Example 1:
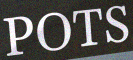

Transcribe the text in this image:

POTS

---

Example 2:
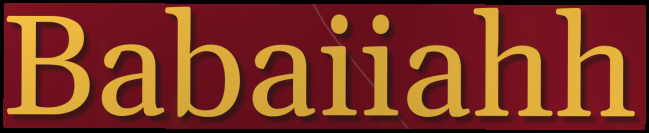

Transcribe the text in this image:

Babaiiahh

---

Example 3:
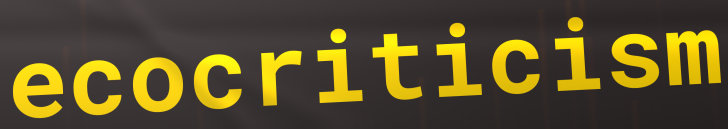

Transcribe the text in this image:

ecocriticism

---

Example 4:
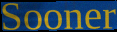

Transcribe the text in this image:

Sooner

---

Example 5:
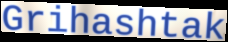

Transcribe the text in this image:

Grihashtak